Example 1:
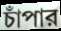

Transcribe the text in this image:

চাঁপার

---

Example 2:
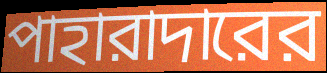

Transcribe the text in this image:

পাহারাদারের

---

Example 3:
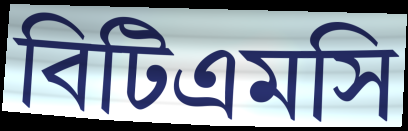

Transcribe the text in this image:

বিটিএমসি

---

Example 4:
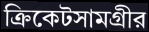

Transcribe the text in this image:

ক্রিকেটসামগ্রীর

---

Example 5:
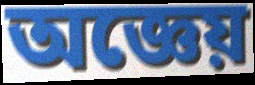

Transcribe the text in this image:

অজ্ঞেয়